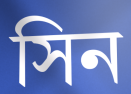
সিন